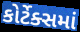
કોર્ટેક્સમાં